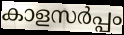
കാളസർപ്പം